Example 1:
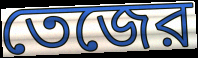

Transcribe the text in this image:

তেজের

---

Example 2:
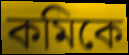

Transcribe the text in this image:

কমিকে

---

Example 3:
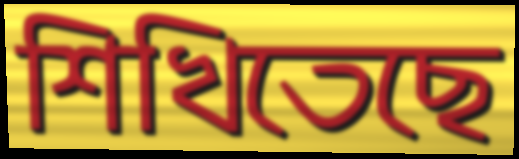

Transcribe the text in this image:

শিখিতেছে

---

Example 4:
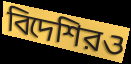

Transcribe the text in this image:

বিদেশিরও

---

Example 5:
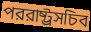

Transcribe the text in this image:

পররাষ্ট্রসচিব